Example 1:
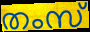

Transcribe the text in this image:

തംസ്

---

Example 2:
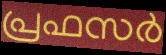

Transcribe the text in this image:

പ്രഫസർ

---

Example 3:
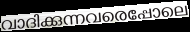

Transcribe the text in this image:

വാദിക്കുന്നവരെപ്പോലെ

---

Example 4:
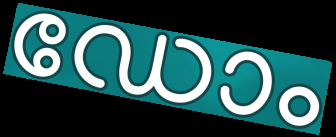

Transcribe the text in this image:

ഡോം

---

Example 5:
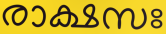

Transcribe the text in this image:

രാക്ഷസഃ